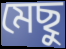
মেছু